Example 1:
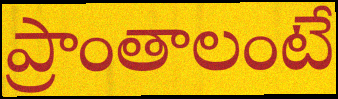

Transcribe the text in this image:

ప్రాంతాలంటే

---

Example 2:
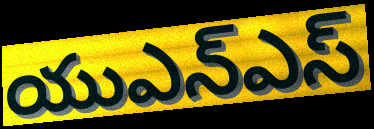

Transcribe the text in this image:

యుఎన్ఎస్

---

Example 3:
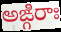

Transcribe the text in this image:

అఙ్గిరాః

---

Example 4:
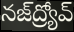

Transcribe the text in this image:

నజ్‌ద్ర్యోవ్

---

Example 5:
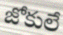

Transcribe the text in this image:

జోకులే